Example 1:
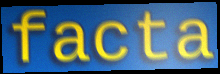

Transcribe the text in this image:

facta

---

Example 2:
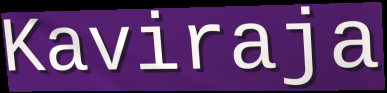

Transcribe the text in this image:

Kaviraja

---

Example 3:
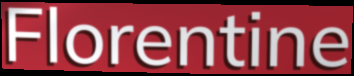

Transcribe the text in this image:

Florentine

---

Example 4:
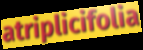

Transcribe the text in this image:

atriplicifolia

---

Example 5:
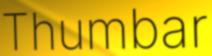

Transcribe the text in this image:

Thumbar